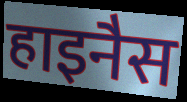
हाइनैस